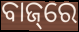
ବାଜ୍‌ରେ